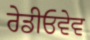
ਰੇਡੀਓਵੇਵ